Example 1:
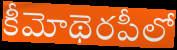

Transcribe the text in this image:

కీమోథెరపీలో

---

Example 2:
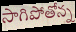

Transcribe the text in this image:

సాగిపోతోన్న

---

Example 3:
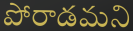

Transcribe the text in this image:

పోరాడమని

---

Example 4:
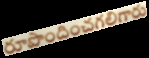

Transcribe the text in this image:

రూపొందించగలిగారు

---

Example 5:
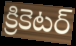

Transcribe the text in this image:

క్రికెటర్